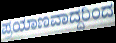
ಪ್ರಯಾಣವಾದ್ದರಿಂದ